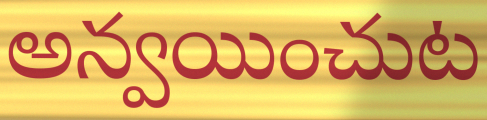
అన్వయించుట